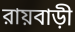
রায়বাড়ী